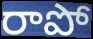
రాపో